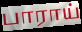
பாராய்